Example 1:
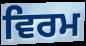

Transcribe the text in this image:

ਵਿਰਮ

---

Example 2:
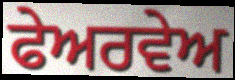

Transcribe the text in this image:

ਫੇਅਰਵੇਅ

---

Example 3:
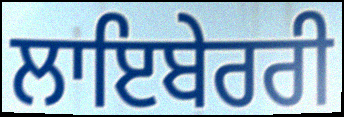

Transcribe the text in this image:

ਲਾਇਬੇਰਰੀ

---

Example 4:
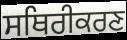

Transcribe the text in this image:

ਸਥਿਰੀਕਰਣ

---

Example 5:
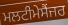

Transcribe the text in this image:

ਮਲਟੀਮੇਸੈਂਜਰ